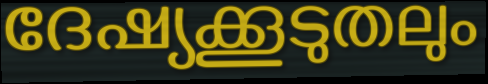
ദേഷ്യക്കൂടുതലും